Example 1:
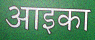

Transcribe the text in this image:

आइका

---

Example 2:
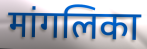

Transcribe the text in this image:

मांगलिका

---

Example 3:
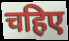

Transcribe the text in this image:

चहिए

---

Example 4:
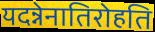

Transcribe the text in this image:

यदन्नेनातिरोहति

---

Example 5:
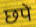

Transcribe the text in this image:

छपे